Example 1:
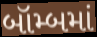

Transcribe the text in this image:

બૉમ્બમાં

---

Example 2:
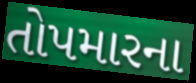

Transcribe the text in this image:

તોપમારના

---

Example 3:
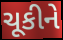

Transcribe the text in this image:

ચૂકીને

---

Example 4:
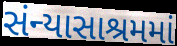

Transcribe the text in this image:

સંન્યાસાશ્રમમાં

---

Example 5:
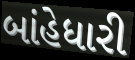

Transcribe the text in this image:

બાંહેધારી